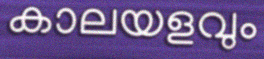
കാലയളവും